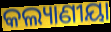
କଲ୍ୟାଣୀୟା